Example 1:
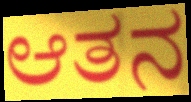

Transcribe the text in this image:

ಆತನ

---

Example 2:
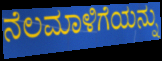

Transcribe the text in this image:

ನೆಲಮಾಳಿಗೆಯನ್ನು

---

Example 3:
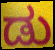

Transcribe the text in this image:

ಡು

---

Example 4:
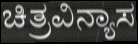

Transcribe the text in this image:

ಚಿತ್ರವಿನ್ಯಾಸ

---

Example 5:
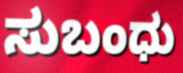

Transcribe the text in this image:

ಸುಬಂಧು